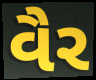
વૈર